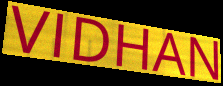
VIDHAN